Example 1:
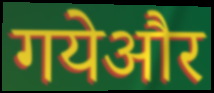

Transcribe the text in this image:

गयेऔर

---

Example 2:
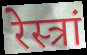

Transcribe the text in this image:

रेस्त्रां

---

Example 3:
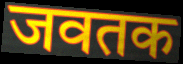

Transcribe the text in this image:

जवतक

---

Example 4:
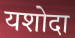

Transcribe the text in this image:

यशोदा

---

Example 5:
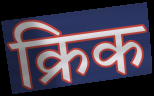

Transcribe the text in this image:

क्रिक